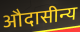
औदासीन्य